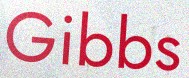
Gibbs